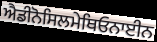
ਐਡੀਨੋਸਿਲਮੇਥਿਓਨਾਈਨ